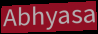
Abhyasa